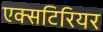
एक्सटिरियर